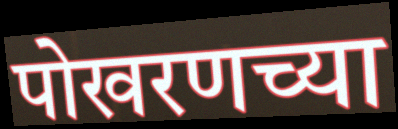
पोखरणच्या